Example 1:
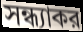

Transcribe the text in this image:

সন্ধ্যাকর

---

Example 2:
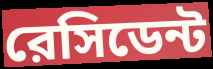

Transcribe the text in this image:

রেসিডেন্ট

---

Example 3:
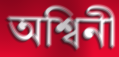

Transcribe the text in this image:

অশ্বিনী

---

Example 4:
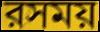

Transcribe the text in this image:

রসময়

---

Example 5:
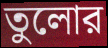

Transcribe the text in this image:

তুলোর